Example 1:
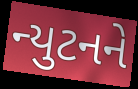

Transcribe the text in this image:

ન્યુટનને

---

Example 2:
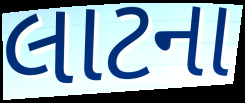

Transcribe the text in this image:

લાટના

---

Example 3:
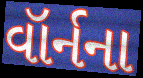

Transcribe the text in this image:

વૉર્નના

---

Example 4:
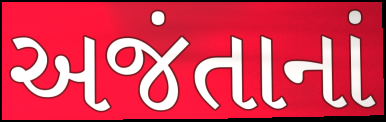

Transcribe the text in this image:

અજંતાનાં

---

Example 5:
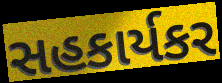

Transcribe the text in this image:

સહકાર્યકર